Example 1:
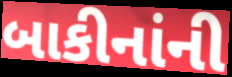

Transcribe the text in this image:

બાકીનાંની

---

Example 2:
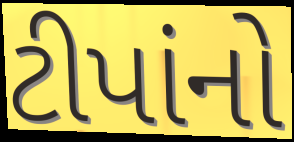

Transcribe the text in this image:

ટીપાંનો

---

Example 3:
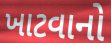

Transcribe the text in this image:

ખાટવાનો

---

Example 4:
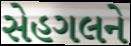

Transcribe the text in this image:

સેહગલને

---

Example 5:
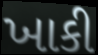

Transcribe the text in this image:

ખાકી